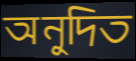
অনুদিত